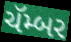
ચૅમ્બર